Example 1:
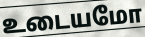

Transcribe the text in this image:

உடையமோ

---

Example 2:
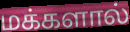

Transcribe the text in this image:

மக்களால்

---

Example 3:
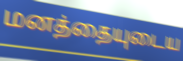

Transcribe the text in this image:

மனத்தையுடைய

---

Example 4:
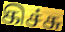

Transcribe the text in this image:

கிச்சு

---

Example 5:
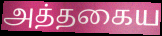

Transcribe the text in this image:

அத்தகைய